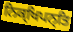
ਨਿਕ੍ਖਿਪਨ੍ਤਿ